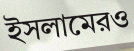
ইসলামেরও